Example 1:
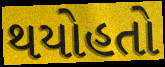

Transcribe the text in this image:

થયોહતો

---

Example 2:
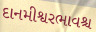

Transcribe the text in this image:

દાનમીશ્વરભાવશ્ચ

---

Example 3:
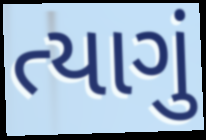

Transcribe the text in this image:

ત્યાગું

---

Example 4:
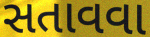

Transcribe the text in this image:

સતાવવા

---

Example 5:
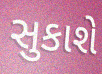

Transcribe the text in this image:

સુકાશે